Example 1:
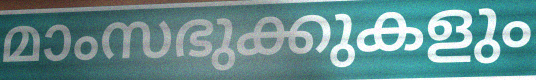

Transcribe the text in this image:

മാംസഭുക്കുകളും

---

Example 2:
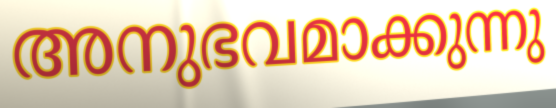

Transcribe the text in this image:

അനുഭവമാക്കുന്നു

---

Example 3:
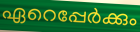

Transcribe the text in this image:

ഏറെപ്പേർക്കും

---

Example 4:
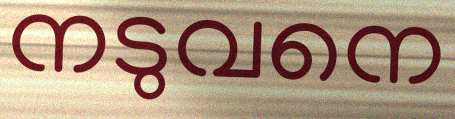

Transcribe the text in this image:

നടുവനെ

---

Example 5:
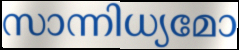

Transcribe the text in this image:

സാന്നിധ്യമോ